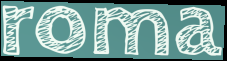
roma